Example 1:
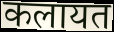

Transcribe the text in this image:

कलायत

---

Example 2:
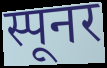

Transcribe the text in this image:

स्पूनर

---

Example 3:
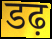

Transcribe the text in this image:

डढ़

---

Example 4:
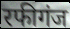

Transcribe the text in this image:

रफीगंज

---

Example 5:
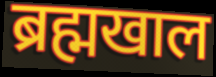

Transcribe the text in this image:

ब्रह्मखाल